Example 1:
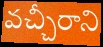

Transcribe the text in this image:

వచ్చీరాని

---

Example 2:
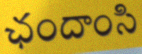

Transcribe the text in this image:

ఛందాంసి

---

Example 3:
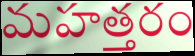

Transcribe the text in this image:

మహత్తరం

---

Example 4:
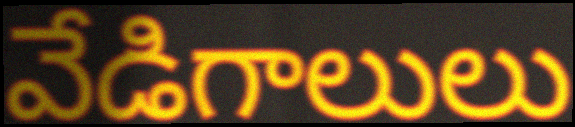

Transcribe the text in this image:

వేడిగాలులు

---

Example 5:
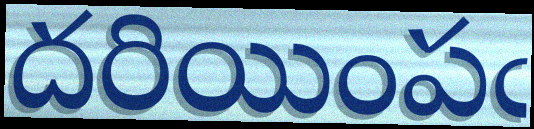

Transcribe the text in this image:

దరియింపఁ